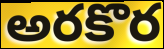
అరకొర